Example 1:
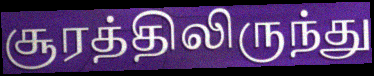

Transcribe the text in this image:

சூரத்திலிருந்து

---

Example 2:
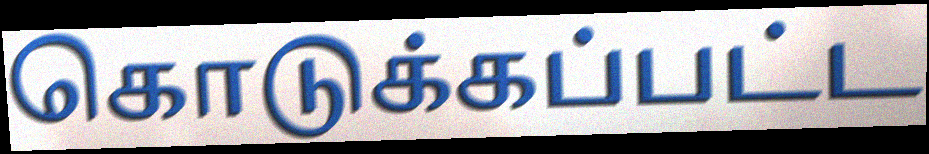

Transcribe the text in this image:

கொடுக்கப்பட்ட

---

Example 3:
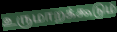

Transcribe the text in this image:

உருமாறக்கூடும்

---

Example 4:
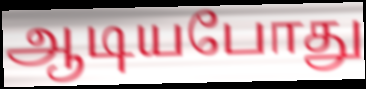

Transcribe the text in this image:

ஆடியபோது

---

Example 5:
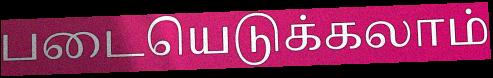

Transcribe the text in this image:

படையெடுக்கலாம்